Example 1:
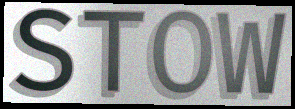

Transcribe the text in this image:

STOW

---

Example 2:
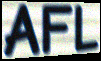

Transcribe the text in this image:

AFL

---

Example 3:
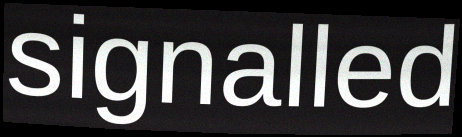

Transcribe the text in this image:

signalled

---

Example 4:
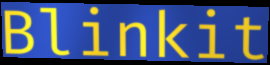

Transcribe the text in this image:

Blinkit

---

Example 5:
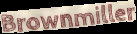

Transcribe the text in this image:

Brownmiller